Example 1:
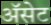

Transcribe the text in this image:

ॲसेट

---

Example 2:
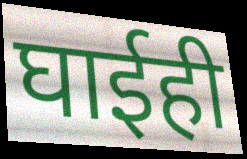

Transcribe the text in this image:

घाईही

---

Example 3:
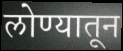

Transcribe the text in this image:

लोण्यातून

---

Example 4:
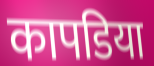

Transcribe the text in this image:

कापडिया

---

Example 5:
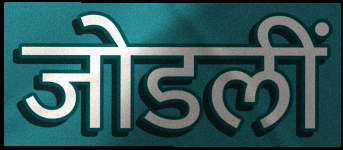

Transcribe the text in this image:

जोडलीं